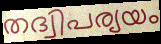
തദ്വിപര്യയം